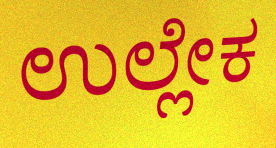
ಉಲ್ಲೇಕ